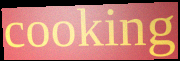
cooking